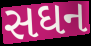
સઘન